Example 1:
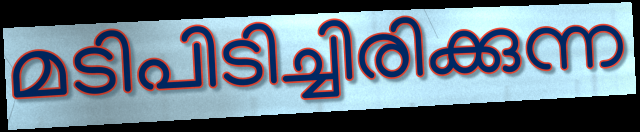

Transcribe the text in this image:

മടിപിടിച്ചിരിക്കുന്ന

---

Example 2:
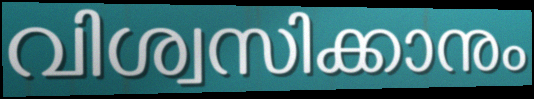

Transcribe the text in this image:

വിശ്വസിക്കാനും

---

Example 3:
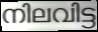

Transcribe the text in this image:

നിലവിട്ട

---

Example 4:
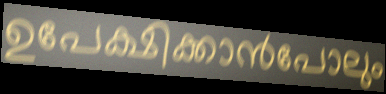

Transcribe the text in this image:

ഉപേക്ഷിക്കാൻപോലും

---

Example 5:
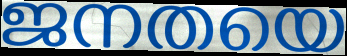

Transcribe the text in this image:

ജനതയെ